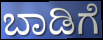
ಬಾಡಿಗೆ